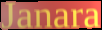
Janara